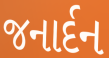
જનાર્દન